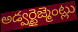
అడ్వర్టైజ్మెంట్లు